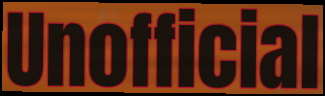
Unofficial